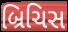
બ્રિચિસ